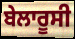
ਬੇਲਾਰੂਸੀ